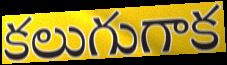
కలుగుగాక